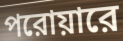
পরোয়ারে